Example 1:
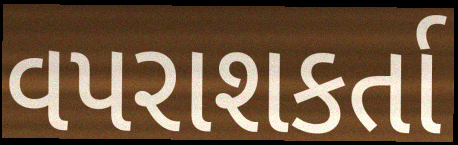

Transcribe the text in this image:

વપરાશકર્તા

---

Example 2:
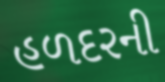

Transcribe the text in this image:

હળદરની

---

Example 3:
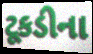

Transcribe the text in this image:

ટૂકડીના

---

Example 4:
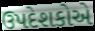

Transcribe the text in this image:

ઉપદેશકોએ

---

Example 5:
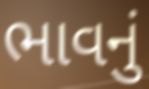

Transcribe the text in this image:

ભાવનું